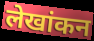
लेखांकन